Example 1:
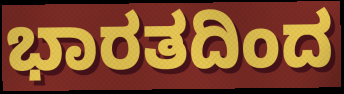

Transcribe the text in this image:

ಭಾರತದಿಂದ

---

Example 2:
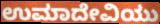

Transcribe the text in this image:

ಉಮಾದೇವಿಯು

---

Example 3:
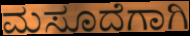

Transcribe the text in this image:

ಮಸೂದೆಗಾಗಿ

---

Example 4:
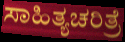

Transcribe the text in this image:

ಸಾಹಿತ್ಯಚರಿತ್ರೆ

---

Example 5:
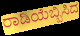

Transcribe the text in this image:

ರಾಡಿಯೆಬ್ಬಿಸಿದ